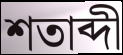
শতাব্দী